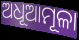
ଅଧୂଆମୂଳା